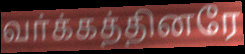
வர்க்கத்தினரே